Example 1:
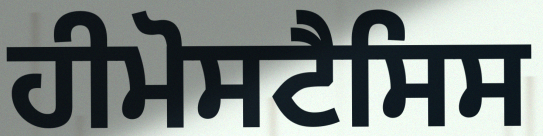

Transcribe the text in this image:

ਹੀਮੋਸਟੈਸਿਸ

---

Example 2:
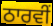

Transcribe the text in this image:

ਠਾਰਵੀਂ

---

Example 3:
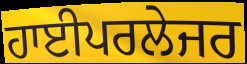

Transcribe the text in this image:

ਹਾਈਪਰਲੇਜਰ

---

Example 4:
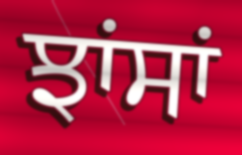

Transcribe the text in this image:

ਝਾਂਸਾਂ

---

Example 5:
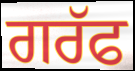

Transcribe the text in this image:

ਗਰੱਫ